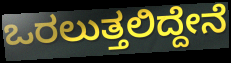
ಒರಲುತ್ತಲಿದ್ದೇನೆ